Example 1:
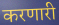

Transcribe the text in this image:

करणारी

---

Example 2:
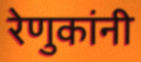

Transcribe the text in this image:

रेणुकांनी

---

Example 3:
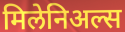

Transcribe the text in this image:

मिलेनिअल्स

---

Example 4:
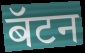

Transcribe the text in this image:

बॅटन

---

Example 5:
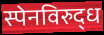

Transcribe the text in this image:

स्पेनविरुद्ध